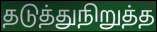
தடுத்துநிறுத்த